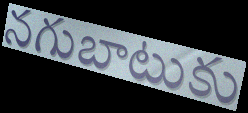
నగుబాటుకు